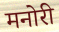
मनोरी